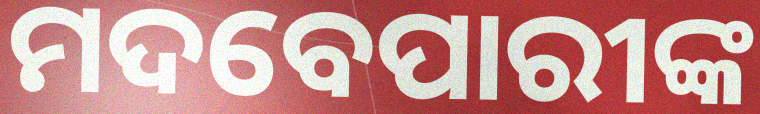
ମଦବେପାରୀଙ୍କ